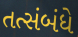
તત્સંબંધે